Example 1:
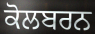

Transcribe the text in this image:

ਕੋਲਬਰਨ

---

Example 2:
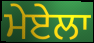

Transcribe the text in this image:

ਮੇਏਲਾ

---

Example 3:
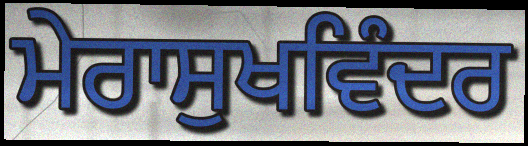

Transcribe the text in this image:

ਮੇਰਾਸੁਖਵਿੰਦਰ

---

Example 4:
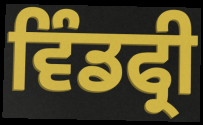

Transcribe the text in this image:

ਵਿੰਡਫ੍ਰੀ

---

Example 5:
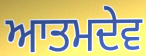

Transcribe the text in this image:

ਆਤਮਦੇਵ